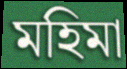
মহিমা